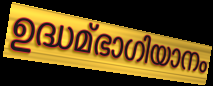
ഉദ്ധമ്ഭാഗിയാനം